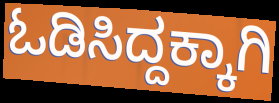
ಓಡಿಸಿದ್ದಕ್ಕಾಗಿ